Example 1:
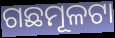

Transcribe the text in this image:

ଗଛମୂଳଟା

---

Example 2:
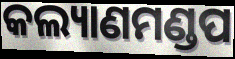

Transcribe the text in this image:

କଲ୍ୟାଣମଣ୍ଡପ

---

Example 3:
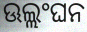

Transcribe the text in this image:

ଊଲ୍ଲଂଘନ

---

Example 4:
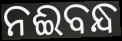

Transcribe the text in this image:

ନଈବନ୍ଧ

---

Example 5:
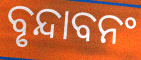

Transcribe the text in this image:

ବୃନ୍ଦାବନଂ